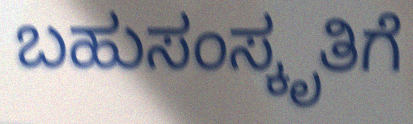
ಬಹುಸಂಸ್ಕೃತಿಗೆ